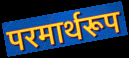
परमार्थरूप